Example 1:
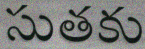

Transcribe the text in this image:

సుతకు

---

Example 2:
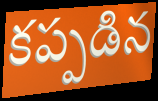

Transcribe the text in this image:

కప్పడిన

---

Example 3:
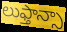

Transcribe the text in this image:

లుఫ్తాన్సా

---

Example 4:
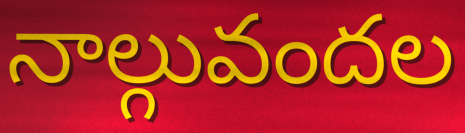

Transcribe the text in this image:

నాల్గువందల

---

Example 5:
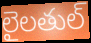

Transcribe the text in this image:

లైలతుల్